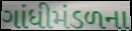
ગાંધીમંડળના